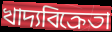
খাদ্যবিক্রেতা